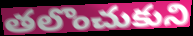
తలొంచుకుని